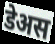
डेअस